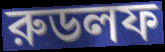
রুডলফ